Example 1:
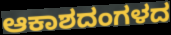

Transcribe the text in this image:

ಆಕಾಶದಂಗಳದ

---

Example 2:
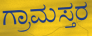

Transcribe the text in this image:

ಗ್ರಾಮಸ್ತರ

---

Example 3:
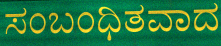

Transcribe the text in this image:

ಸಂಬಂಧಿತವಾದ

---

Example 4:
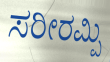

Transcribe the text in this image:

ಸರೀರಮ್ಪಿ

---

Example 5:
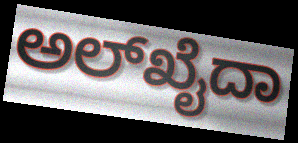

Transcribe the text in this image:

ಅಲ್‌ಖೈದಾ